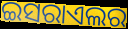
ଇସରାଏଲର